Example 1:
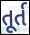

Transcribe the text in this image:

તૂર્ત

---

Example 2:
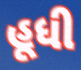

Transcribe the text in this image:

હૂધી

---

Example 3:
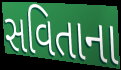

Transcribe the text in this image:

સવિતાના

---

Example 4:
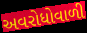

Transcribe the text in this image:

અવરોધોવાળી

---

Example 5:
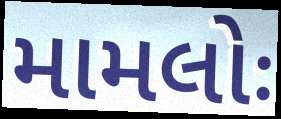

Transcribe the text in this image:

મામલોઃ